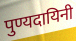
पुण्यदायिनी